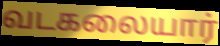
வடகலையார்